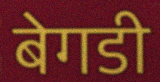
बेगडी